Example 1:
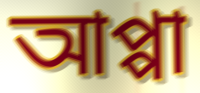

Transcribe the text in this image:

আপ্পা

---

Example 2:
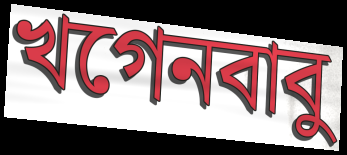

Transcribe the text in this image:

খগেনবাবু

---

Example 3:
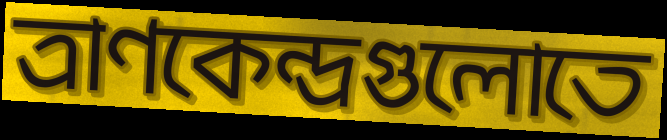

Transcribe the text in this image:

ত্রাণকেন্দ্রগুলোতে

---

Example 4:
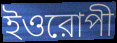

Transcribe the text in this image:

ইওরোপী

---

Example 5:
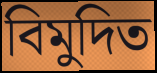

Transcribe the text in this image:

বিমুদিত